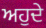
ਅਹੁਦੇ